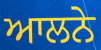
ਆਲਨੇ